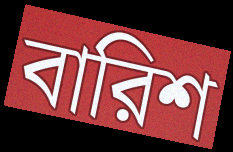
বারিশ